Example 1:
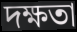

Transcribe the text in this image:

দক্ষতা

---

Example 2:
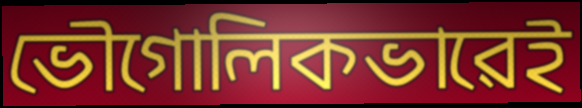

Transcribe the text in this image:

ভৌগোলিকভাৱেই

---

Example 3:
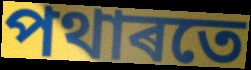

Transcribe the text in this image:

পথাৰতে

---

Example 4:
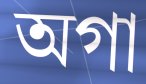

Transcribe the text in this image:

অগা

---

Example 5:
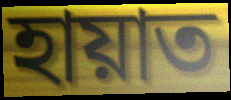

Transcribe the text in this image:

হায়াত